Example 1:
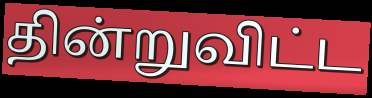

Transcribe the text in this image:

தின்றுவிட்ட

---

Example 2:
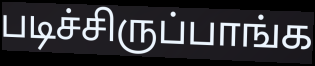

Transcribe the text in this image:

படிச்சிருப்பாங்க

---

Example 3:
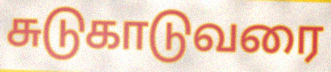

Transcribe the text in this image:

சுடுகாடுவரை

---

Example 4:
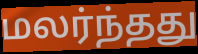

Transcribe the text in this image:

மலர்ந்தது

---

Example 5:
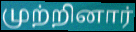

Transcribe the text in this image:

முற்றினார்